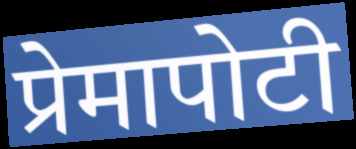
प्रेमापोटी